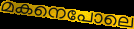
മകനെപോലെ